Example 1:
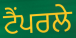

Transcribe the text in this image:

ਟੈਂਪਰਲੇ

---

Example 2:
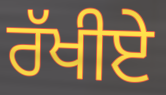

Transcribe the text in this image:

ਰੱਖੀਏ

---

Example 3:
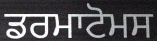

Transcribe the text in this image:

ਡਰਮਾਟੋਮਸ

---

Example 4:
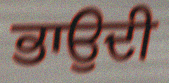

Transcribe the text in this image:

ਭਾਉਦੀ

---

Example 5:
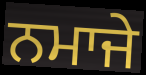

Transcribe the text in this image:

ਨਮਾਜੇ